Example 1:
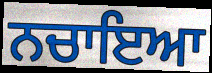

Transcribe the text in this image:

ਨਚਾਇਆ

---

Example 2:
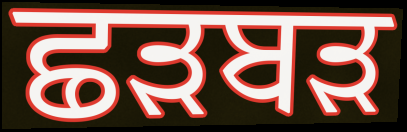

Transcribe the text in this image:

ਛੜਬੜ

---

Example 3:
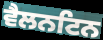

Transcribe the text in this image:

ਵੈਲਨਟਿਨ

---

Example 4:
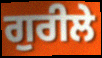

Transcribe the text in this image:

ਗੁਰੀਲੇ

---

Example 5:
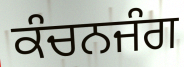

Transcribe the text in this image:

ਕੰਚਨਜੰਗ